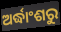
ଅର୍ଦ୍ଧାଂଶରୁ